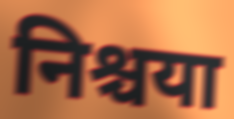
निश्चया